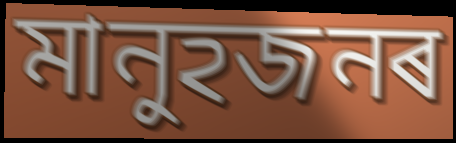
মানুহজনৰ